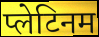
प्लेटिनम